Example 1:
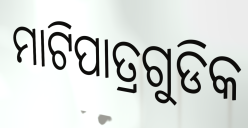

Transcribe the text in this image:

ମାଟିପାତ୍ରଗୁଡିକ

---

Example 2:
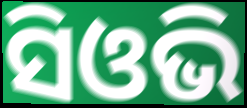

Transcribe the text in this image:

ସିଓଭି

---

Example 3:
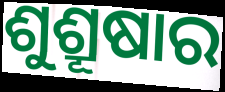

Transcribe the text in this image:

ଶୁଶ୍ରୂଷାର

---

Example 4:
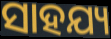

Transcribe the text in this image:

ସାହଯ୍ୟ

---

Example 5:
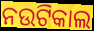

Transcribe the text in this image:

ନଉଟିକାଲ